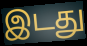
இடது